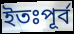
ইতঃপূর্ব